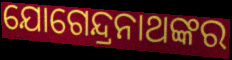
ଯୋଗେନ୍ଦ୍ରନାଥଙ୍କର